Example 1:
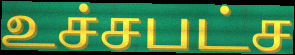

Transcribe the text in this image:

உச்சபட்ச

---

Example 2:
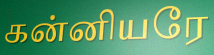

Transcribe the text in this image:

கன்னியரே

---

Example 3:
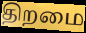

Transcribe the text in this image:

திறமை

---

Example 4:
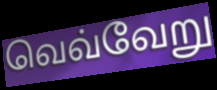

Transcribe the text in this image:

வெவ்வேறு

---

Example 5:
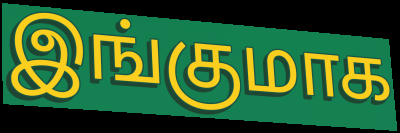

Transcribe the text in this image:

இங்குமாக